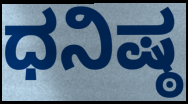
ಧನಿಷ್ಠ